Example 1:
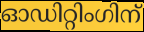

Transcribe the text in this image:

ഓഡിറ്റിംഗിന്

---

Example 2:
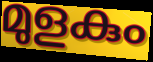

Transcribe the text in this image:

മുളകും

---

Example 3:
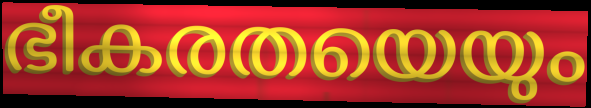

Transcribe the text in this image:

ഭീകരതയെയും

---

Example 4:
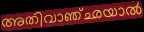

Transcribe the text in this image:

അതിവാഞ്ഛയാൽ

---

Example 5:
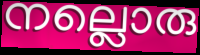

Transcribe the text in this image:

നല്ലൊരു